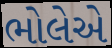
ભોલેએ